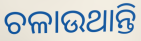
ଚଳାଉଥାନ୍ତି